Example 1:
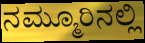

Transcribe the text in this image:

ನಮ್ಮೂರಿನಲ್ಲಿ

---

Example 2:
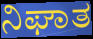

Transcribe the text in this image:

ನಿಘಾತ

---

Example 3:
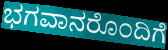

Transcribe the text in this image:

ಭಗವಾನರೊಂದಿಗೆ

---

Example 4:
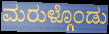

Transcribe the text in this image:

ಮರುಳ್ಗೊಂಡು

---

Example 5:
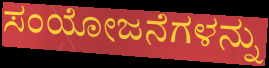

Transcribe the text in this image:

ಸಂಯೋಜನೆಗಳನ್ನು